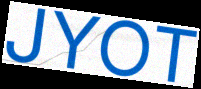
JYOT